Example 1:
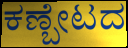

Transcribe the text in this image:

ಕಣ್ಬೇಟದ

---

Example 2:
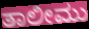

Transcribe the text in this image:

ತಾಲೀಮು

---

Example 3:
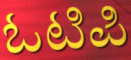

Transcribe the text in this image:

ಓಟಿಪಿ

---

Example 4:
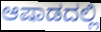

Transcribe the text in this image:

ಆಷಾಡದಲ್ಲಿ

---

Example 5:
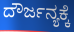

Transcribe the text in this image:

ದೌರ್ಜನ್ಯಕ್ಕೆ